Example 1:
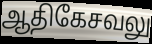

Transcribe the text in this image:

ஆதிகேசவலு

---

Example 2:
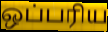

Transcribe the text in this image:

ஒப்பரிய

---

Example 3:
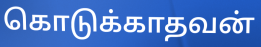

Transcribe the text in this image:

கொடுக்காதவன்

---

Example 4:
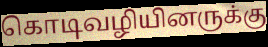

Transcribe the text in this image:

கொடிவழியினருக்கு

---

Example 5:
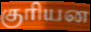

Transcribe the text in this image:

குரியன